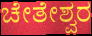
ಚೇತೇಶ್ವರ